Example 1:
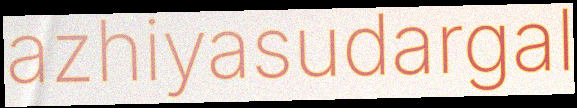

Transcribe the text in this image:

azhiyasudargal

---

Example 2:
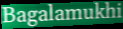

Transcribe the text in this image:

Bagalamukhi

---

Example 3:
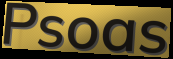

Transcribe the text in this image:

Psoas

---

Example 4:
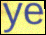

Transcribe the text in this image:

ye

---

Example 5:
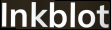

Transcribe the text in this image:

Inkblot